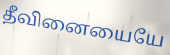
தீவினையையே